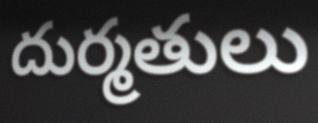
దుర్మతులు